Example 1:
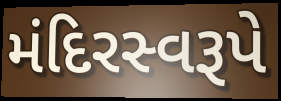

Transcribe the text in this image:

મંદિરસ્વરૂપે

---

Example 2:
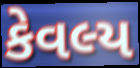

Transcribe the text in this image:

કેવલ્ય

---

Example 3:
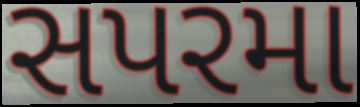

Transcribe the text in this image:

સપરમા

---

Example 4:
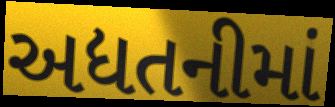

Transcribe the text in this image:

અદ્યતનીમાં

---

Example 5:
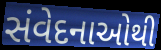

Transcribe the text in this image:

સંવેદનાઓથી